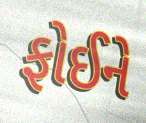
ફોઈને